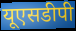
यूएसडीपी